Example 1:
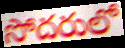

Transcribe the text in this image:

సోదరులో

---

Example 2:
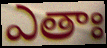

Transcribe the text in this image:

ఎతాః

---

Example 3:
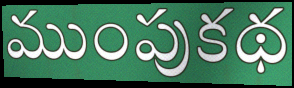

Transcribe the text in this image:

ముంపుకథ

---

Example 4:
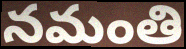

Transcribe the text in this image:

నమంతి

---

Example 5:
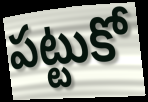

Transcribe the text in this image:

పట్టుకో